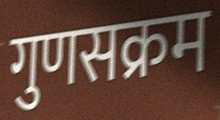
गुणसक्रम